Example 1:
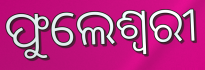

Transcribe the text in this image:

ଫୁଲେଶ୍ବରୀ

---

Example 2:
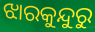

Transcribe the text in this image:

ଝାରକୁନ୍ଦୁରୁ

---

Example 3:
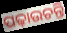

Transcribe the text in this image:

ପଢ଼ାଉଚନ୍ତି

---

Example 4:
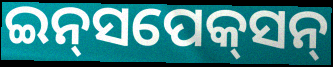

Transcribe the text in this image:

ଇନ୍‌ସପେକ୍‌ସନ୍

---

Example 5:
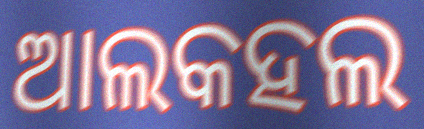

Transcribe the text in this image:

ଆଲକହଲ